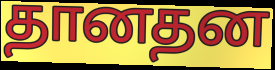
தானதன